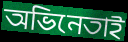
অভিনেতাই